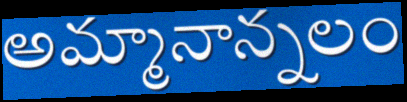
అమ్మానాన్నలం